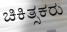
ಚಿಕಿತ್ಸಕರು